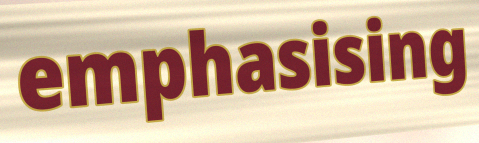
emphasising